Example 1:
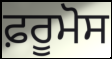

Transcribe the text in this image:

ਫ਼ਰੂਮੋਸ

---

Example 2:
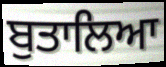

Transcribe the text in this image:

ਬੁਤਾਲਿਆ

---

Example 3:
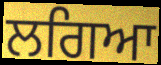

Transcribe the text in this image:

ਲਗਿਆ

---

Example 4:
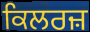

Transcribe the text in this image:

ਕਿਲਰਜ਼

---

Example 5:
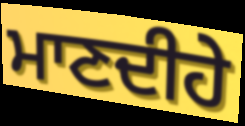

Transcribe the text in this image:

ਮਾਣਦੀਹੇ